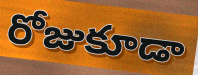
రోజుకూడా